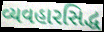
વ્યવહારસિદ્ધ